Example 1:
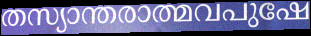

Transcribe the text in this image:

തസ്യാന്തരാത്മവപുഷേ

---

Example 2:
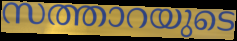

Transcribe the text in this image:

സത്താറയുടെ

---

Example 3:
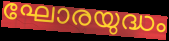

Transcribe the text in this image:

ഘോരയുദ്ധം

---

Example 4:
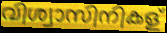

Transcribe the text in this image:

വിശ്വാസിനികള്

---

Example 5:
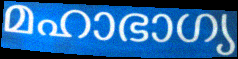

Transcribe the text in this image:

മഹാഭാഗ്യ